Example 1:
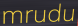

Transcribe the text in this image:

mrudu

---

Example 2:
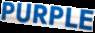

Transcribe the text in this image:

PURPLE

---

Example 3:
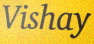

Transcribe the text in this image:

Vishay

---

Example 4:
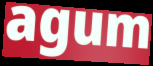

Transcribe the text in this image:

agum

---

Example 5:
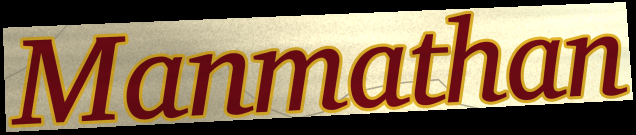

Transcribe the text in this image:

Manmathan